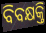
ବିବକ୍ଷକ୍ତି